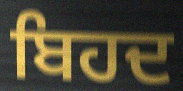
ਬਿਹਦ